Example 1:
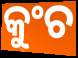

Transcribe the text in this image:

କୁଂଚ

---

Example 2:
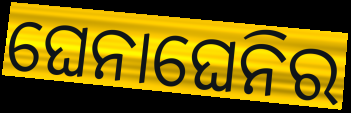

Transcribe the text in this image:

ଘେନାଘେନିର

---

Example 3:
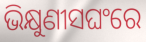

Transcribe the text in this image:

ଭିକ୍ଷୁଣୀସଘଂରେ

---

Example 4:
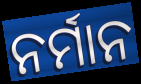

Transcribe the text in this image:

ନର୍ମାନ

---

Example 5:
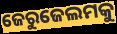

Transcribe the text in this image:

ଜେରୁଜେଲମକୁ